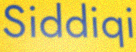
Siddiqi